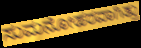
ಸುಮನೋಹರವಾಗಿತ್ತು